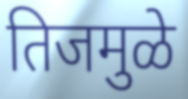
तिजमुळे